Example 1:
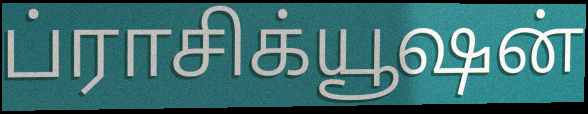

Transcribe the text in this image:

ப்ராசிக்யூஷன்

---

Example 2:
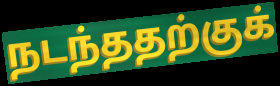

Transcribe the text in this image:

நடந்ததற்குக்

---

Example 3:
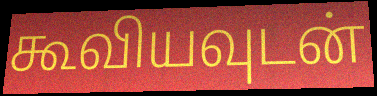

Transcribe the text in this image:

கூவியவுடன்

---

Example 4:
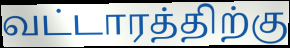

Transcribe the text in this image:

வட்டாரத்திற்கு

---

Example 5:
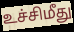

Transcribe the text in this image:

உச்சிமீது